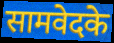
सामवेदके